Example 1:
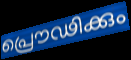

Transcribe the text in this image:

പ്രൌഢിക്കും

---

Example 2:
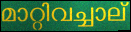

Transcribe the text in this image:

മാറ്റിവച്ചാല്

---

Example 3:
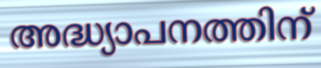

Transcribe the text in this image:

അദ്ധ്യാപനത്തിന്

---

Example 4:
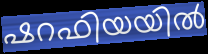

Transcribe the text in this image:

ഷറഫിയയിൽ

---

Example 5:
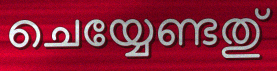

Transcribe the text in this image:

ചെയ്യേണ്ടതു്